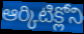
ఆర్కిటిక్లోని